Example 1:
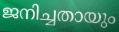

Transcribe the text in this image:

ജനിച്ചതായും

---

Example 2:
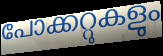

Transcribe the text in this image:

പോക്കറ്റുകളും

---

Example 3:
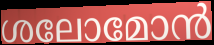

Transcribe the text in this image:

ശലോമോൻ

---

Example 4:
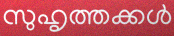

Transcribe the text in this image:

സുഹൃത്തക്കൾ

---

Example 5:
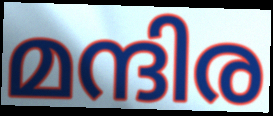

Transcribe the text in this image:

മന്ദിര